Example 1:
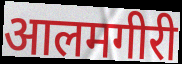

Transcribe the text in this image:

आलमगीरी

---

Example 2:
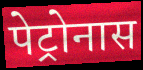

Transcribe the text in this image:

पेट्रोनास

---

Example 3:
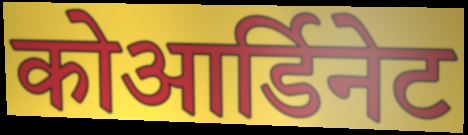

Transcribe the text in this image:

कोआर्डिनेट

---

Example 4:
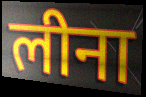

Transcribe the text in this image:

लीना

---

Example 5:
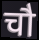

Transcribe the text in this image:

चौ